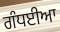
ਗੰਧਈਆ